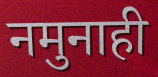
नमुनाही